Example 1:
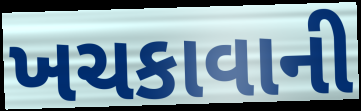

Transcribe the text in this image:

ખચકાવાની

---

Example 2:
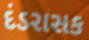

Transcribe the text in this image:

દંડરાસક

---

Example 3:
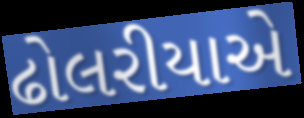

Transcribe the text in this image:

ઢોલરીયાએ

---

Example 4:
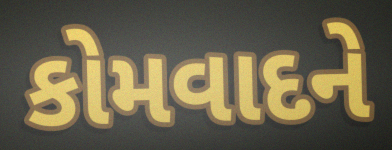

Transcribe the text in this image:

કોમવાદને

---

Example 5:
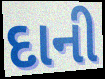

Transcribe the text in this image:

દાની